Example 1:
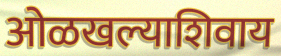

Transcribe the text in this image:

ओळखल्याशिवाय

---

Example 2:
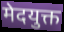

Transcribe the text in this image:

मेदयुक्त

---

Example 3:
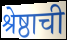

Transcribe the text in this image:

श्रेष्ठाची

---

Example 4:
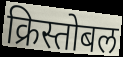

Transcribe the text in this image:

क्रिस्तोबल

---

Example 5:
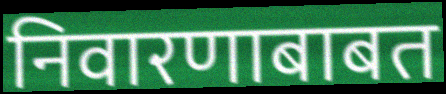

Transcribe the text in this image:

निवारणाबाबत